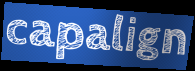
capalign